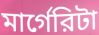
মার্গেরিটা